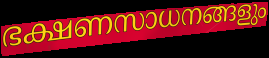
ഭക്ഷണസാധനങ്ങളും